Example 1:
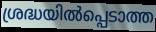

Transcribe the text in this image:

ശ്രദ്ധയിൽപ്പെടാത്ത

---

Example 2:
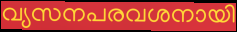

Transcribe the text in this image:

വ്യസനപരവശനായി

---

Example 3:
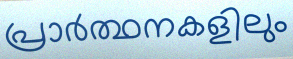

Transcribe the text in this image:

പ്രാർത്ഥനകളിലും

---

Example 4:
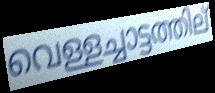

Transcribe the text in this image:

വെള്ളച്ചാട്ടത്തില്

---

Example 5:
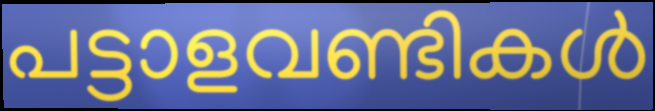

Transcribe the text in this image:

പട്ടാളവണ്ടികൾ